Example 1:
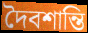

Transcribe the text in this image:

দৈবশান্তি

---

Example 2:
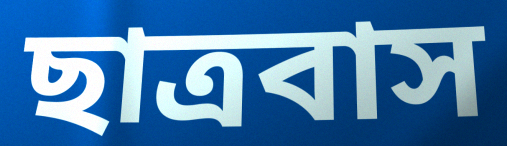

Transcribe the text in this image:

ছাত্রবাস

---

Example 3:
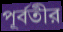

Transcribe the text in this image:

পূর্বতীর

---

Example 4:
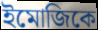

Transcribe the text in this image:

ইমোজিকে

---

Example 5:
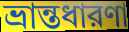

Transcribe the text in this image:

ভ্রান্তধারণা